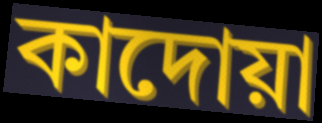
কাদোয়া